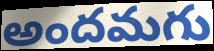
అందమగు